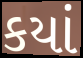
કયાં